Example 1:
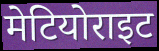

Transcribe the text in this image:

मेटियोराइट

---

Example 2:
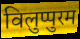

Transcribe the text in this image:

विलुप्पुरम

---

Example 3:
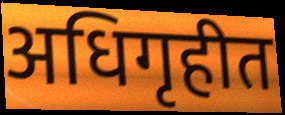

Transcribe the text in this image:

अधिगृहीत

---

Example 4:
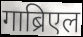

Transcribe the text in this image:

गाब्रिएल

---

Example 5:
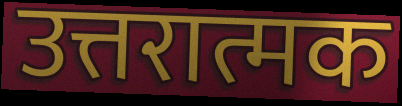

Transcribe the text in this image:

उत्तरात्मक